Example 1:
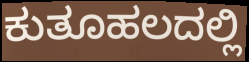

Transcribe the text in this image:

ಕುತೂಹಲದಲ್ಲಿ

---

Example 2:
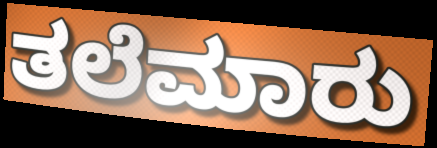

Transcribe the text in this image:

ತಲೆಮಾರು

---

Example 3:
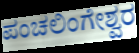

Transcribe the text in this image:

ಪಂಚಲಿಂಗೇಶ್ವರ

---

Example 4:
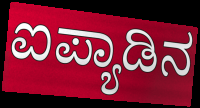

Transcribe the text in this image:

ಐಪ್ಯಾಡಿನ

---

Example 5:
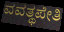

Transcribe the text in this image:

ವವತ್ಥಪೇತಿ